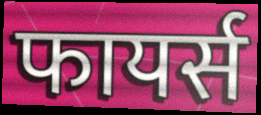
फायर्स